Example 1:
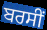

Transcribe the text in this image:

ਬਰਸੀਂ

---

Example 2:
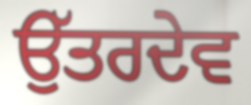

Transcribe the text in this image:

ਉੱਤਰਦੇਵ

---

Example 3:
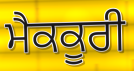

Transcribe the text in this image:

ਮੈਕਕੂਰੀ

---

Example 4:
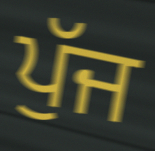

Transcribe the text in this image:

ਪੁੱਜ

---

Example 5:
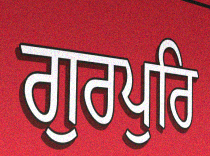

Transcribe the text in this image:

ਗੁਰਪੁਰਿ